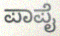
ಪಾಪೈ